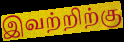
இவற்றிற்கு